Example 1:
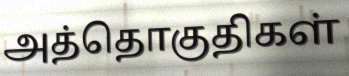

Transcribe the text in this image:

அத்தொகுதிகள்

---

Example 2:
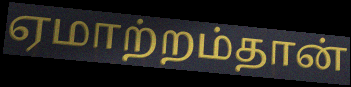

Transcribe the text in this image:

ஏமாற்றம்தான்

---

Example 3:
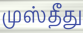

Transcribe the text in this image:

முஸ்தீது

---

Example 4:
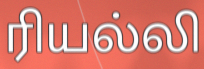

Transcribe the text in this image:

ரியல்லி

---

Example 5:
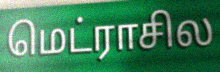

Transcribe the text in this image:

மெட்ராசில